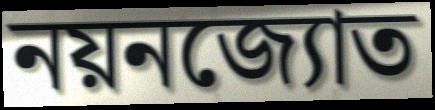
নয়নজ্যোত